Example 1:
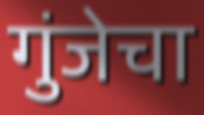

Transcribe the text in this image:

गुंजेचा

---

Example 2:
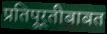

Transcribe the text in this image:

प्रतिपूर्तीबाबत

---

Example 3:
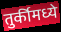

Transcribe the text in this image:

तुर्कीमध्ये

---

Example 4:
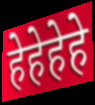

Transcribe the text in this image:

हेहेहेहे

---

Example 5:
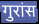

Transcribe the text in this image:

गुरांस